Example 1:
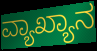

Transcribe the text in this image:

ವ್ಯಾಖ್ಯಾನ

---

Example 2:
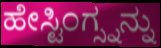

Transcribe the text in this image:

ಹೇಸ್ಟಿಂಗ್ಸ್ನನ್ನು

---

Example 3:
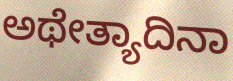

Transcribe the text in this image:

ಅಥೇತ್ಯಾದಿನಾ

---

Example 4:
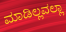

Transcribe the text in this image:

ಮಾಡಿಲ್ಲವಲ್ಲಾ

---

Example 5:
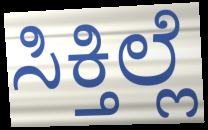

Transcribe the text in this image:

ಸಿಕ್ತಿಲ್ಲೆ